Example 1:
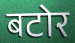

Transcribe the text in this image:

बटोर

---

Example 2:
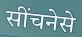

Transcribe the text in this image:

सींचनेसे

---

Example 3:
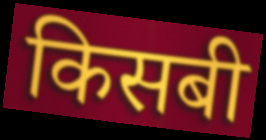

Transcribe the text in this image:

किसबी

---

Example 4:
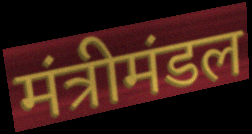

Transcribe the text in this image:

मंत्रीमंडल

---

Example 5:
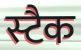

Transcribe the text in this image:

स्‍टैक